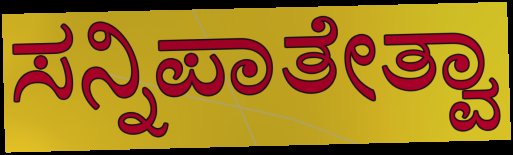
ಸನ್ನಿಪಾತೇತ್ವಾ